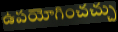
ఉపయోగించచ్చు